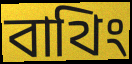
বাথিং